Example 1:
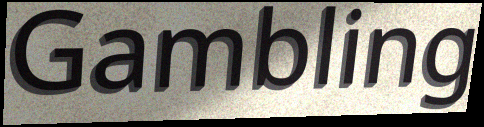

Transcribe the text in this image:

Gambling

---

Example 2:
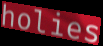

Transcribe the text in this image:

holies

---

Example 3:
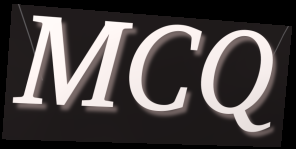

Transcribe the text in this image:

MCQ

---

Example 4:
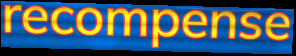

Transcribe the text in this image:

recompense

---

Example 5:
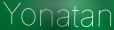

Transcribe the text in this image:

Yonatan